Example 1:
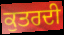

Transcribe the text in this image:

ਕੁਤਰਦੀ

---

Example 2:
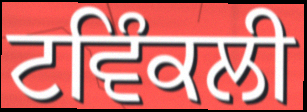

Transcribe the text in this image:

ਟਵਿੰਕਲੀ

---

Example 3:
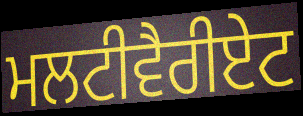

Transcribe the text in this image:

ਮਲਟੀਵੈਰੀਏਟ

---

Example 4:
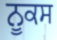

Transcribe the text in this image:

ਨੂਕਸ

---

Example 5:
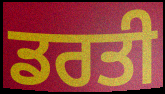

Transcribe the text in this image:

ਡਰਤੀ